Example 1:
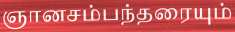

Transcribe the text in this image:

ஞானசம்பந்தரையும்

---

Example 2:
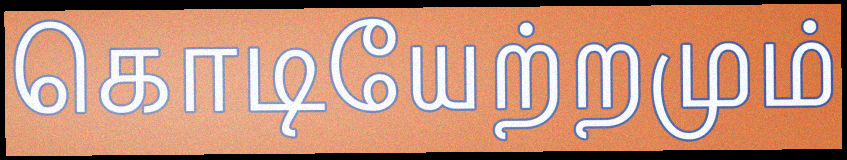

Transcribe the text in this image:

கொடியேற்றமும்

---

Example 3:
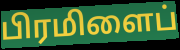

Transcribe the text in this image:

பிரமிளைப்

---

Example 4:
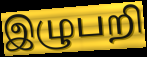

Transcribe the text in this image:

இழுபறி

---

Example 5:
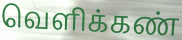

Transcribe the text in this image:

வெளிக்கண்